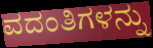
ವದಂತಿಗಳನ್ನು